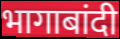
भागाबांदी